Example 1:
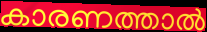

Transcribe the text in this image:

കാരണത്താൽ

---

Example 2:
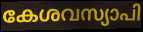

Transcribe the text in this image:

കേശവസ്യാപി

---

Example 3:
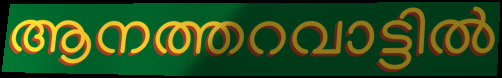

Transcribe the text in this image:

ആനത്തറവാട്ടിൽ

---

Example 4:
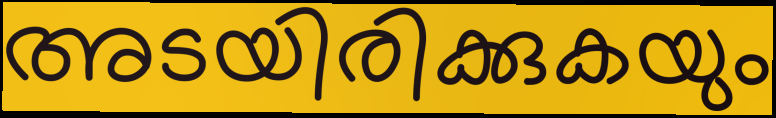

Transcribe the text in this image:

അടയിരിക്കുകയും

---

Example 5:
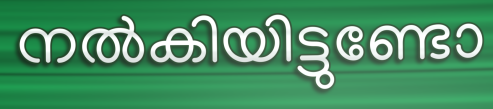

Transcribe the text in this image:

നൽകിയിട്ടുണ്ടോ